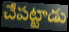
చేపట్టాడు